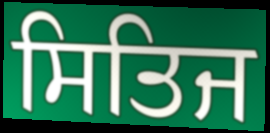
ਸਿਤਿਜ